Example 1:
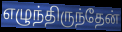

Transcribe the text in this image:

எழுந்திருந்தேன்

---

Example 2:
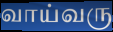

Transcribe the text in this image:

வாய்வரு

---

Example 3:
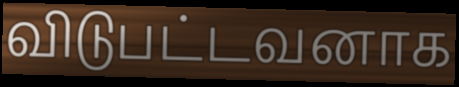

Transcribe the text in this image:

விடுபட்டவனாக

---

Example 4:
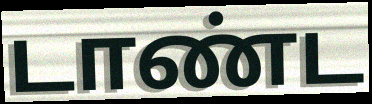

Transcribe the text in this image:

டாண்ட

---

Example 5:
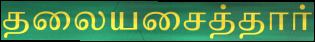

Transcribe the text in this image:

தலையசைத்தார்